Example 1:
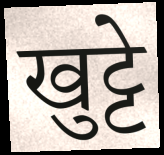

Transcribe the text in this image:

खुट्टे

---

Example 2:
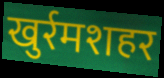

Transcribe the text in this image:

खुर्रमशहर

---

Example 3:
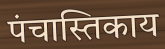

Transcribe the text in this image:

पंचास्तिकाय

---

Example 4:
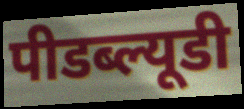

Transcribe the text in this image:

पीडब्ल्यूडी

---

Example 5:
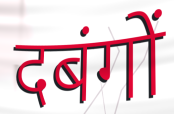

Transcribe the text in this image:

दबंगों